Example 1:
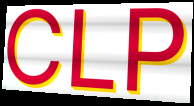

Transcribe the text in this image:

CLP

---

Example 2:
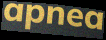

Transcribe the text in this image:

apnea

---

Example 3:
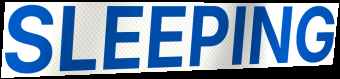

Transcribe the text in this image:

SLEEPING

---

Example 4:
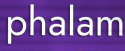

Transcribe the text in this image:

phalam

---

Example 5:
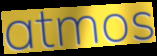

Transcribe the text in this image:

atmos